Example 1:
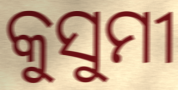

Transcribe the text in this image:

କୁସୁମୀ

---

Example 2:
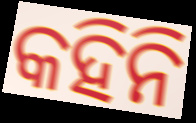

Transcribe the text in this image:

କହିନି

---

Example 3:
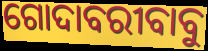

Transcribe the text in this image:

ଗୋଦାବରୀବାବୁ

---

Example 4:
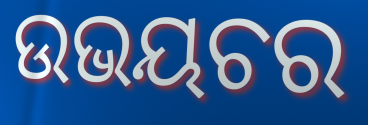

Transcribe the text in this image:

ଉଭୟଚର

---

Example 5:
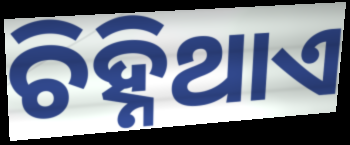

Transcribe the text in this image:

ଚିହ୍ନିଥାଏ